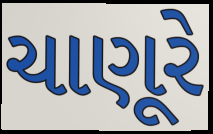
ચાણૂરે